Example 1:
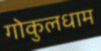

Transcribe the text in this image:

गोकुलधाम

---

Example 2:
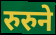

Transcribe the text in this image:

रुरुने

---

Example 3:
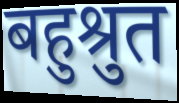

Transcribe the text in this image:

बहुश्रुत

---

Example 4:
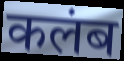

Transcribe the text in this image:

कलंब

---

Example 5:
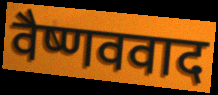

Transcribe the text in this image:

वैष्णववाद